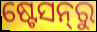
ଷ୍ଟେସନ୍‌ରୁ